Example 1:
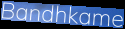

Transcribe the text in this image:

Bandhkame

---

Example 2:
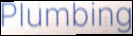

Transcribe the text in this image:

Plumbing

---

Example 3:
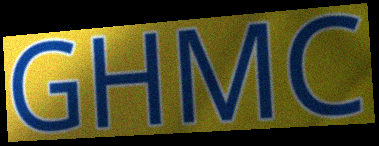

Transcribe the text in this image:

GHMC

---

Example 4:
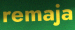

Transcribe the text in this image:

remaja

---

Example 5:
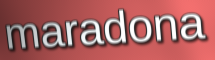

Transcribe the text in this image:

maradona